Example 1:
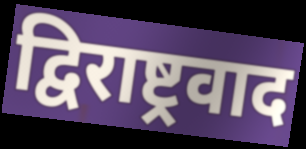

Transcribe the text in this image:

द्विराष्ट्रवाद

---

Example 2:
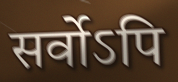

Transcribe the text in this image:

सर्वोऽपि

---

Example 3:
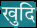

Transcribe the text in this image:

खुदि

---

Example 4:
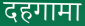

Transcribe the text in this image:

दहगामा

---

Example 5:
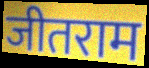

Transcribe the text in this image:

जीतराम